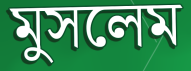
মুসলেম